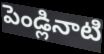
పెండ్లినాటి